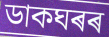
ডাকঘৰৰ